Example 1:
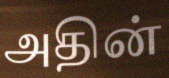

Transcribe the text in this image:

அதின்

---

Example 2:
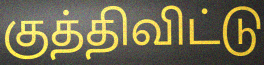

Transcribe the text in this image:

குத்திவிட்டு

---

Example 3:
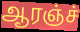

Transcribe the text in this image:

ஆரஞ்ச்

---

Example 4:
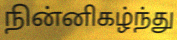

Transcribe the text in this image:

நின்னிகழ்ந்து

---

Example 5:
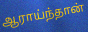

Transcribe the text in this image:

ஆராய்ந்தான்